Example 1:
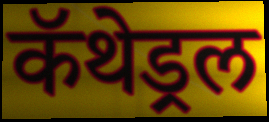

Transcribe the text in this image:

कॅथेड्रल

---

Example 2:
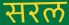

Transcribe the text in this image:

सरल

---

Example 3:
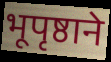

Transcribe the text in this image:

भूपृष्ठाने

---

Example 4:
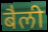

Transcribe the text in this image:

बैली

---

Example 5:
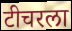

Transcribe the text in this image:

टीचरला